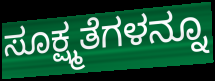
ಸೂಕ್ಷ್ಮತೆಗಳನ್ನೂ